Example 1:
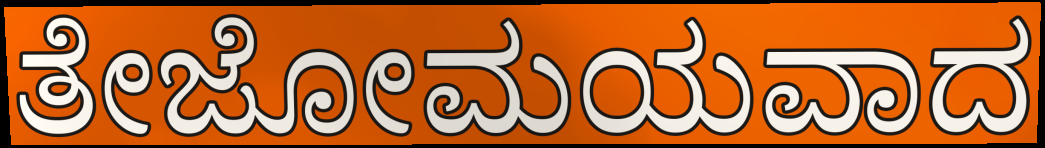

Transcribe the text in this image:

ತೇಜೋಮಯವಾದ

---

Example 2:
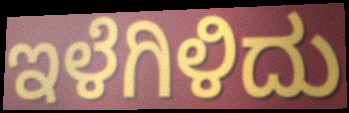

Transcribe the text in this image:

ಇಳೆಗಿಳಿದು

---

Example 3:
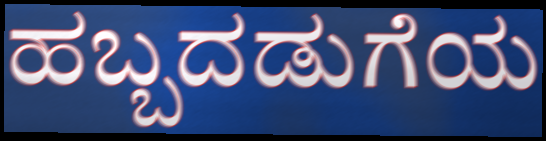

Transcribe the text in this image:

ಹಬ್ಬದಡುಗೆಯ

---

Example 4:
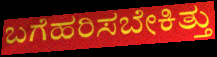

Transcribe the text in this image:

ಬಗೆಹರಿಸಬೇಕಿತ್ತು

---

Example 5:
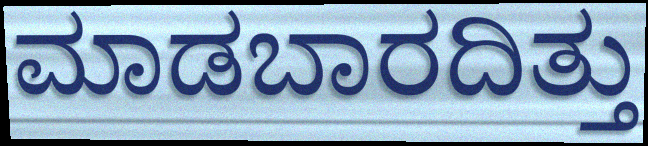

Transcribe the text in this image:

ಮಾಡಬಾರದಿತ್ತು